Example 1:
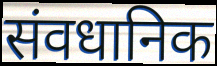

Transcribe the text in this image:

संवधानिक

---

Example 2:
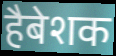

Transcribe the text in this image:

हैबेशक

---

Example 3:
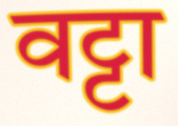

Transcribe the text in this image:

वट्टा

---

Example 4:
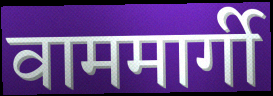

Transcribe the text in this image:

वाममार्गी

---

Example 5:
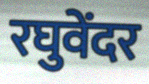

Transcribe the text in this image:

रघुवेंदर